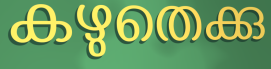
കഴുതെക്കു